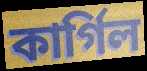
কার্গিল